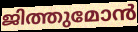
ജിത്തുമോൻ